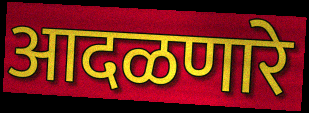
आदळणारे